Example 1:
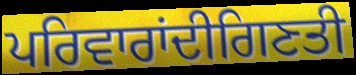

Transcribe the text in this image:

ਪਰਿਵਾਰਾਂਦੀਗਿਣਤੀ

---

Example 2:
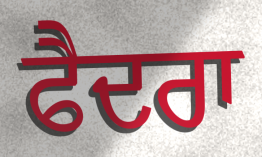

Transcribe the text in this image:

ਫੈਦਰਾ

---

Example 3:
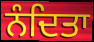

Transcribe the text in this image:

ਨੰਦਿਤਾ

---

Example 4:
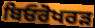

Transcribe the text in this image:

ਬਿਓਰੋਖਰੜ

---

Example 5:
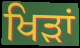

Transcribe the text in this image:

ਖਿੜਾਂ